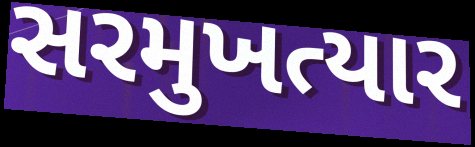
સરમુખત્યાર